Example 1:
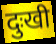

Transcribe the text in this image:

दुःखी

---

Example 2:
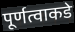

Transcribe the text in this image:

पूर्णत्वाकडे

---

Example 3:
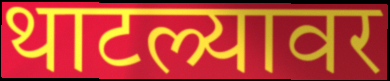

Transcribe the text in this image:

थाटल्यावर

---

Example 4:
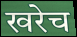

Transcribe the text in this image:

खरेच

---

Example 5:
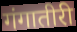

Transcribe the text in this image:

गंगातीरी